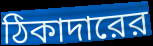
ঠিকাদারের